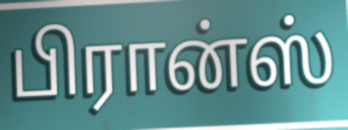
பிரான்ஸ்